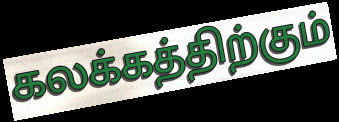
கலக்கத்திற்கும்